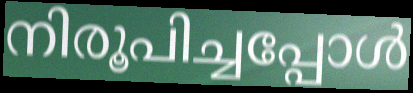
നിരൂപിച്ചപ്പോൾ